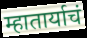
म्हातार्याचं